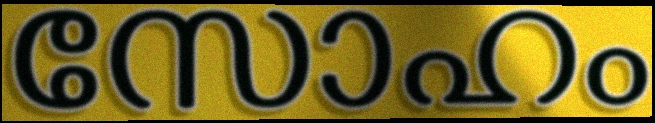
സോഹം